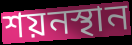
শয়নস্থান